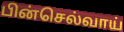
பின்செல்வாய்